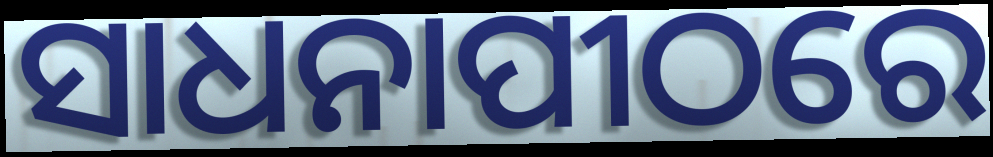
ସାଧନାପୀଠରେ